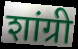
शांग्री